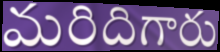
మరిదిగారు